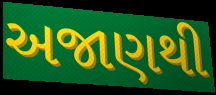
અજાણથી